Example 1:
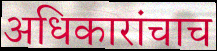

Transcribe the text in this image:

अधिकारांचाच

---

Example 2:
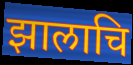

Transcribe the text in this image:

झालाचि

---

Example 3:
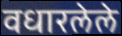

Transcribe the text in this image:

वधारलेले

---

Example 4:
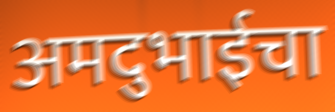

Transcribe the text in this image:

अमदुभाईचा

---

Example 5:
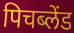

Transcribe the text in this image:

पिचब्लेंड